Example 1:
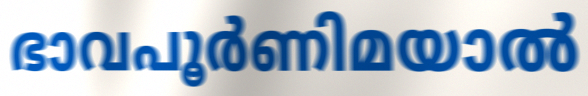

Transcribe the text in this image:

ഭാവപൂർണിമയാൽ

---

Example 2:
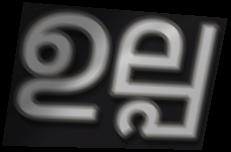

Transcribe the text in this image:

ഉല്പ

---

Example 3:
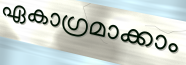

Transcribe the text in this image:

ഏകാഗ്രമാക്കാം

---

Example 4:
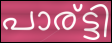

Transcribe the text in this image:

പാര്ട്ടി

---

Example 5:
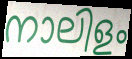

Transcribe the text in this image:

നാലിളം